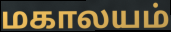
மகாலயம்